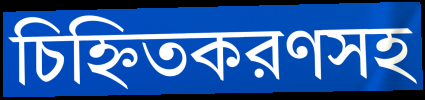
চিহ্নিতকরণসহ